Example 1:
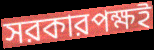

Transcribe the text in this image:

সরকারপক্ষই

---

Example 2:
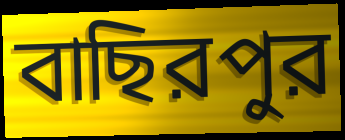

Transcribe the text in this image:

বাছিরপুর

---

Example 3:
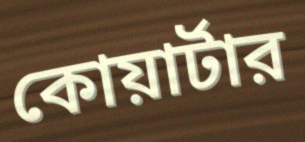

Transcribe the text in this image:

কোয়ার্টার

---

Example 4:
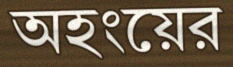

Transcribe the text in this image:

অহংয়ের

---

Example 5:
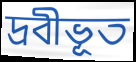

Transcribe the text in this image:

দ্রবীভূত